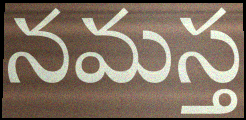
నమస్త